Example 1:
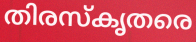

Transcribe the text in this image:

തിരസ്കൃതരെ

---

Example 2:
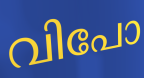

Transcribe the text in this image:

വിപോ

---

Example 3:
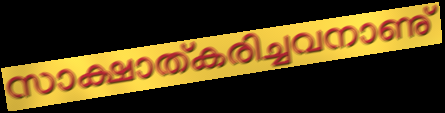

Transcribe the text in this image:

സാക്ഷാത്കരിച്ചവനാണു്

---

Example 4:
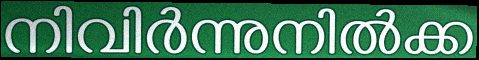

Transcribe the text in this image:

നിവിർന്നുനിൽക്ക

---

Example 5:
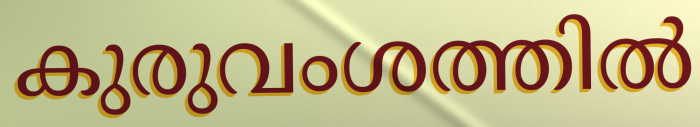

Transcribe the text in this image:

കുരുവംശത്തിൽ